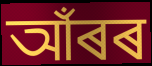
আঁৰৰ